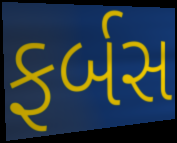
ફર્બસ